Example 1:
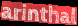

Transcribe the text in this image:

arinthal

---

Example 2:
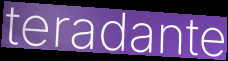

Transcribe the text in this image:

teradante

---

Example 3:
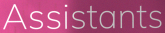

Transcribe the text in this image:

Assistants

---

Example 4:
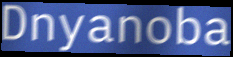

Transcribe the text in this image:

Dnyanoba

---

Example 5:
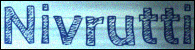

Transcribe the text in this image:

Nivrutti